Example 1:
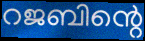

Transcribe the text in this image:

റജബിന്റെ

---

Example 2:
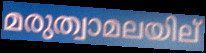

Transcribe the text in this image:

മരുത്വാമലയില്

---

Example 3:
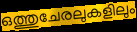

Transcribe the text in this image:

ഒത്തുചേരലുകളിലും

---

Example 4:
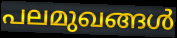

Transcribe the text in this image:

പലമുഖങ്ങൾ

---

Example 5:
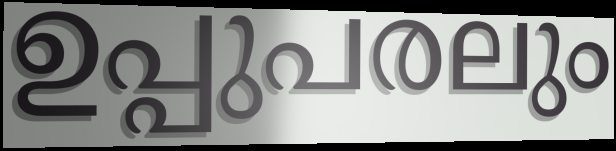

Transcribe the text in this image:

ഉപ്പുപരലും